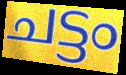
ചട്ടം